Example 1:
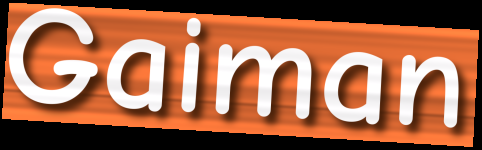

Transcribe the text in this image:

Gaiman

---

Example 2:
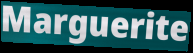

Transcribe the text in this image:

Marguerite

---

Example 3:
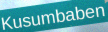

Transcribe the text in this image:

Kusumbaben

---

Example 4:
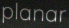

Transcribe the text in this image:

planar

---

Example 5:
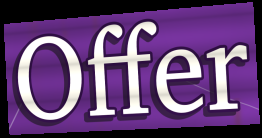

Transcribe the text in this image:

Offer